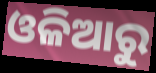
ଓଳିଆରୁ